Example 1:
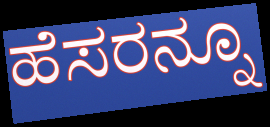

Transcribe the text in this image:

ಹೆಸರನ್ನೂ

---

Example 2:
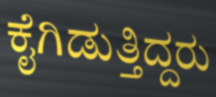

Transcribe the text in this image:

ಕೈಗಿಡುತ್ತಿದ್ದರು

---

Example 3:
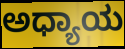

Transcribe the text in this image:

ಅಧ್ಯಾಯ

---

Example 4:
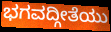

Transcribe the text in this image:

ಭಗವದ್ಗೀತೆಯು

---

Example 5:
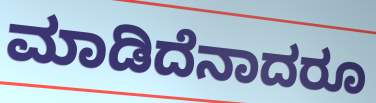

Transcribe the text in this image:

ಮಾಡಿದೆನಾದರೂ